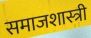
समाजशास्त्री